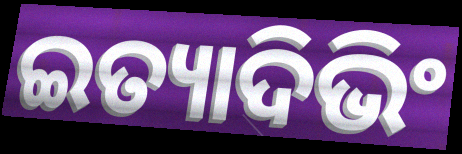
ଇତ୍ୟାଦିଭିଂ